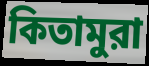
কিতামুরা